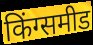
किंग्समीड